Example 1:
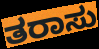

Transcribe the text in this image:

ತರಾಸು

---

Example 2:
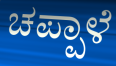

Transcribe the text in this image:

ಚಪ್ಪಾಳೆ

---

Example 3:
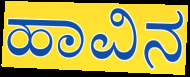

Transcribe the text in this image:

ಹಾವಿನ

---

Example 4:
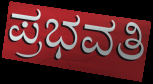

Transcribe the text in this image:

ಪ್ರಭವತಿ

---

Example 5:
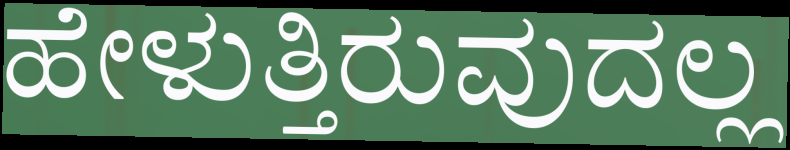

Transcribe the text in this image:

ಹೇಳುತ್ತಿರುವುದಲ್ಲ